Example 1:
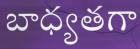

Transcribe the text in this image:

బాధ్యతగా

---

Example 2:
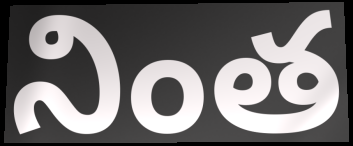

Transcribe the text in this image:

నింత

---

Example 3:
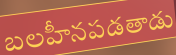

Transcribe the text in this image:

బలహీనపడతాడు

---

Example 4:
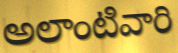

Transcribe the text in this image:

అలాంటివారి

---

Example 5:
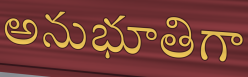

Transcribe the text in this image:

అనుభూతిగా